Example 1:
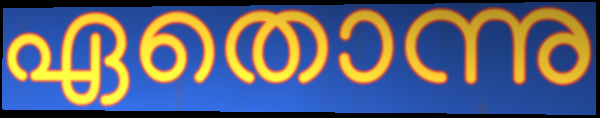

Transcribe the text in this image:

ഏതൊന്നു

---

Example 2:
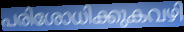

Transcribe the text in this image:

പരിശോധിക്കുകവഴി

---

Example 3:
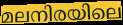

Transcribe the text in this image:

മലനിരയിലെ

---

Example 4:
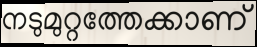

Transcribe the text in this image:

നടുമുറ്റത്തേക്കാണ്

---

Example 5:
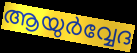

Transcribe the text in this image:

ആയുർവ്വേദ